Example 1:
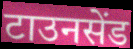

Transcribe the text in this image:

टाउनसेंड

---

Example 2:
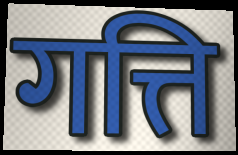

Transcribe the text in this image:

गत्ति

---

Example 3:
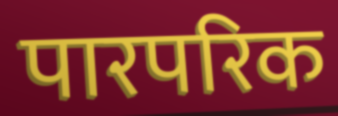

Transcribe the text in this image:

पारपरिक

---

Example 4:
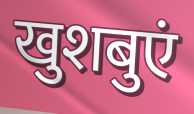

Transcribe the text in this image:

खुशबुएं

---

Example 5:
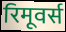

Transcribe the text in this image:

रिमूवर्स